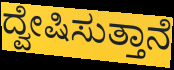
ದ್ವೇಷಿಸುತ್ತಾನೆ